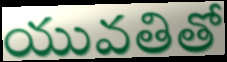
యువతితో